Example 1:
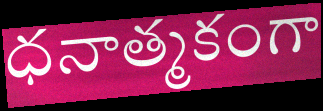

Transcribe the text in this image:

ధనాత్మకంగా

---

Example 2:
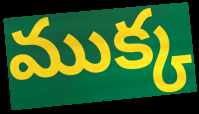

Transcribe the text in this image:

ముక్క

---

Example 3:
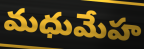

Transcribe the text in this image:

మధుమేహ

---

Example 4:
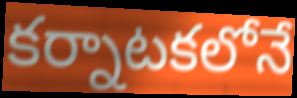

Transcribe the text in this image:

కర్నాటకలోనే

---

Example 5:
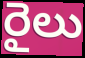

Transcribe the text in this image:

రైలు